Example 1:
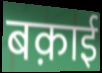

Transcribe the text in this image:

बक़ाई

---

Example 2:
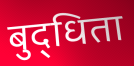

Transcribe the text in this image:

बुद्धिता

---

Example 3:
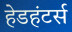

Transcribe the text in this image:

हेडहंटर्स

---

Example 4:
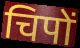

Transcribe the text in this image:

चिपों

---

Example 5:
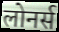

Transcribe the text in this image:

लोनर्स